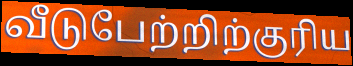
வீடுபேற்றிற்குரிய